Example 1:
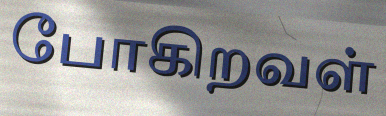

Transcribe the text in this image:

போகிறவள்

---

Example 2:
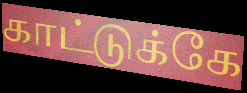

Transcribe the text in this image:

காட்டுக்கே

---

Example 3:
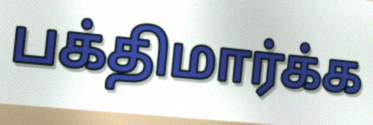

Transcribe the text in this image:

பக்திமார்க்க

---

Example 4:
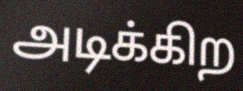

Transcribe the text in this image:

அடிக்கிற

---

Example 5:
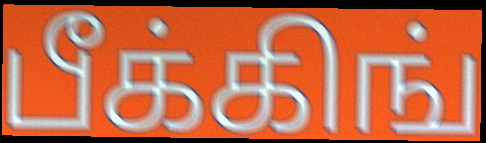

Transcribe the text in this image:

பீக்கிங்